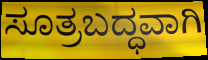
ಸೂತ್ರಬದ್ಧವಾಗಿ